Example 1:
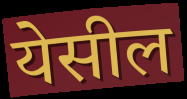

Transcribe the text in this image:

येसील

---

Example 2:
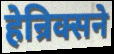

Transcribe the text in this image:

हेन्रिक्सने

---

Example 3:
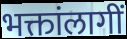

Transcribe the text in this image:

भक्तांलागीं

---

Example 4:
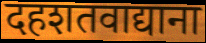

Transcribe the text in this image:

दहशतवाद्याना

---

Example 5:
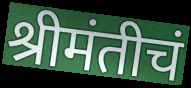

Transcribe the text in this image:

श्रीमंतीचं